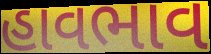
હાવભાવ